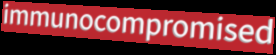
immunocompromised